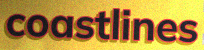
coastlines